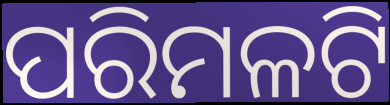
ପରିମଳଟି